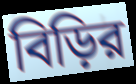
বিড়ির